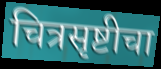
चित्रसृष्टीचा